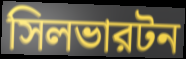
সিলভারটন